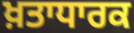
ਖ਼ਤਾਧਾਰਕ